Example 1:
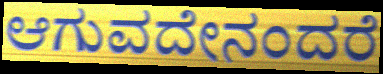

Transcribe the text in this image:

ಆಗುವದೇನಂದರೆ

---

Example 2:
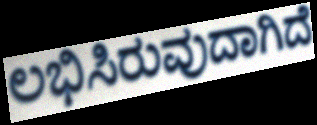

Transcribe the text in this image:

ಲಭಿಸಿರುವುದಾಗಿದೆ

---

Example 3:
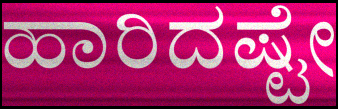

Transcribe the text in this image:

ಹಾರಿದಷ್ಟೇ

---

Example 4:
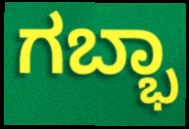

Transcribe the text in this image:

ಗಬ್ಭಾ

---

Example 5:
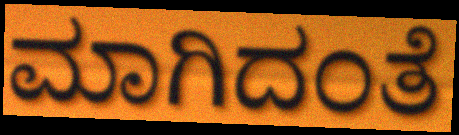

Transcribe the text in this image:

ಮಾಗಿದಂತೆ